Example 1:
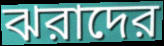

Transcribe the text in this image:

ঝরাদের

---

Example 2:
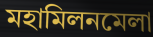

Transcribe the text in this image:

মহামিলনমেলা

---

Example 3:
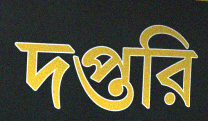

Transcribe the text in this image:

দপ্তরি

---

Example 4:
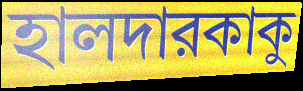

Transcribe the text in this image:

হালদারকাকু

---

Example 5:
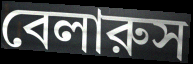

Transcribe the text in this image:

বেলারুস